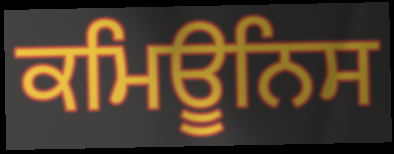
ਕਮਿਊਨਿਸ